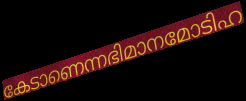
കേടാണെന്നഭിമാനമോടിഹ